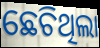
ଛେଚିଥିଲା